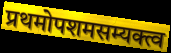
प्रथमोपशमसम्यक्त्व